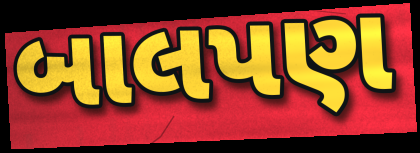
બાલપણ